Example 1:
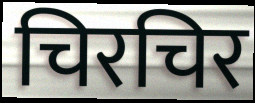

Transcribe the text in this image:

चिरचिर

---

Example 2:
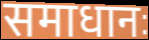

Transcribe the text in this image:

समाधानः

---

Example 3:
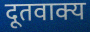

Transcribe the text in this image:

दूतवाक्य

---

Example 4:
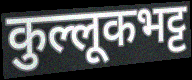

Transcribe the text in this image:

कुल्लूकभट्ट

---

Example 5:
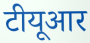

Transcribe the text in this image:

टीयूआर